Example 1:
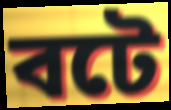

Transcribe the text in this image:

বটে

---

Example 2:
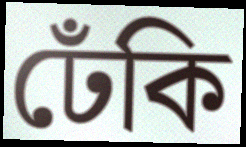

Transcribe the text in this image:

ঢেঁকি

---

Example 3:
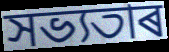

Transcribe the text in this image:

সভ্যতাৰ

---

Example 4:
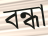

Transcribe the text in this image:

বন্ধা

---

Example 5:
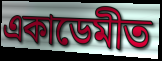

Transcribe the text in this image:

একাডেমীত